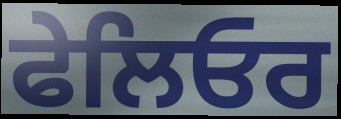
ਫੇਲਿਓਰ